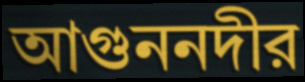
আগুননদীর